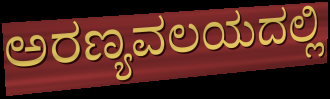
ಅರಣ್ಯವಲಯದಲ್ಲಿ